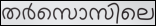
തർസൊസിലെ